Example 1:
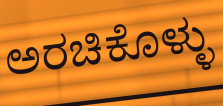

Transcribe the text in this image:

ಅರಚಿಕೊಳ್ಳು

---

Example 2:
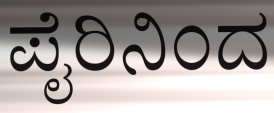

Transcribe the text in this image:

ಪೈರಿನಿಂದ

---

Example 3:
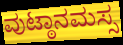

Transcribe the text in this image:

ವುಟ್ಠಾನಮಸ್ಸ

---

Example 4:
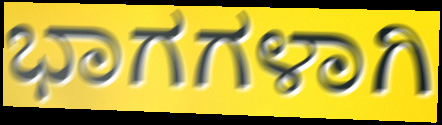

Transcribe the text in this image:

ಭಾಗಗಳಾಗಿ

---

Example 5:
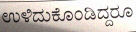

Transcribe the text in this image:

ಉಳಿದುಕೊಂಡಿದ್ದರೂ